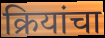
क्रियांचा